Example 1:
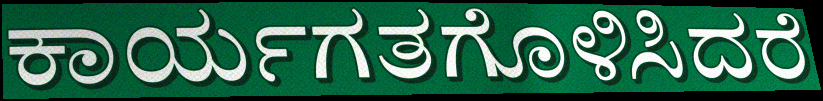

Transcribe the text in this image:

ಕಾರ್ಯಗತಗೊಳಿಸಿದರೆ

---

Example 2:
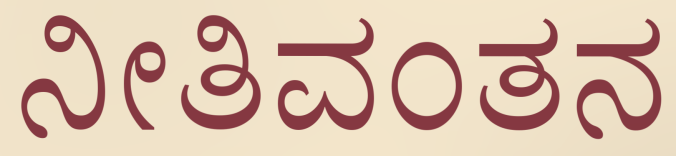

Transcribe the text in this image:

ನೀತಿವಂತನ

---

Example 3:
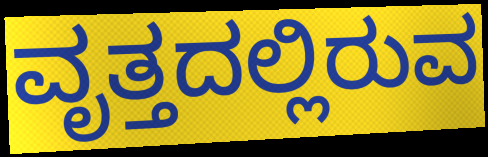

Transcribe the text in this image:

ವೃತ್ತದಲ್ಲಿರುವ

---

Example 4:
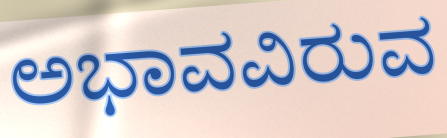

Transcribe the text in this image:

ಅಭಾವವಿರುವ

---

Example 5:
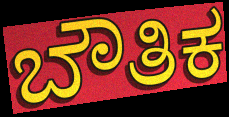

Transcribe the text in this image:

ಬೌತಿಕ